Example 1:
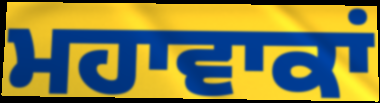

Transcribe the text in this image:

ਮਹਾਵਾਕਾਂ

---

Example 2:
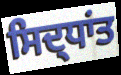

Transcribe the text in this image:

ਸਿਦ੍ਧਾਂਤ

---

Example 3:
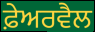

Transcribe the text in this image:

ਫ਼ੇਅਰਵੈਲ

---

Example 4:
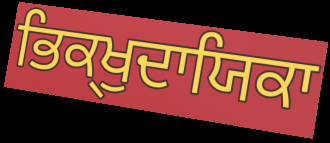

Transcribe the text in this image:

ਭਿਕ੍ਖੁਦਾਯਿਕਾ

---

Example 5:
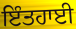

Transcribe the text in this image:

ਇੰਤਹਾਈ